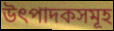
উৎপাদকসমূহ